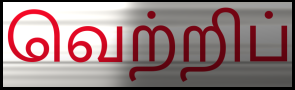
வெற்றிப்